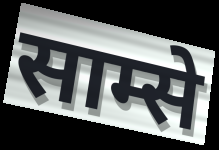
साम्से